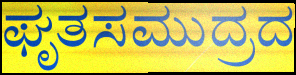
ಘೃತಸಮುದ್ರದ